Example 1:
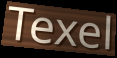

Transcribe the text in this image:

Texel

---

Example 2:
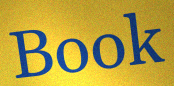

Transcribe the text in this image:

Book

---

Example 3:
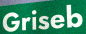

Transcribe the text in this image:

Griseb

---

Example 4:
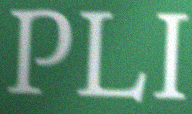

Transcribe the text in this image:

PLI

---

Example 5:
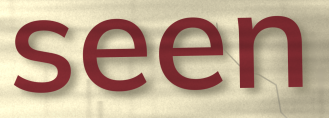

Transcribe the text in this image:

seen